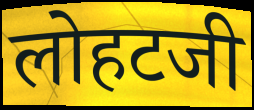
लोहटजी